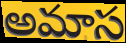
అమాస